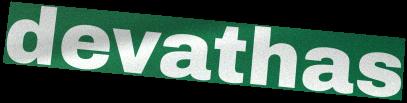
devathas